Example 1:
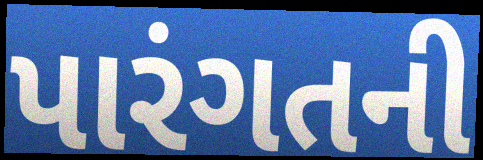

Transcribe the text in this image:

પારંગતની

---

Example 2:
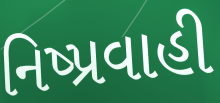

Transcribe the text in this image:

નિષ્પ્રવાહી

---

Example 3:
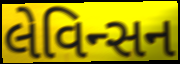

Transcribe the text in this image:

લેવિન્સન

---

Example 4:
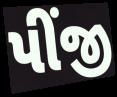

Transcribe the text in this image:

પીંજી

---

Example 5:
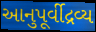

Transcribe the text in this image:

આનુપૂર્વીદ્રવ્ય